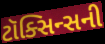
ટૉક્સિન્સની